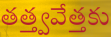
తత్త్వవేత్తకు